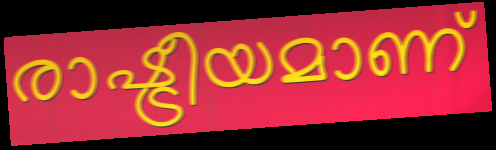
രാഷ്ട്രീയമാണ്